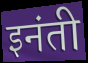
इनंती